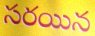
సరయిన